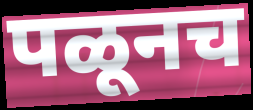
पळूनच